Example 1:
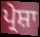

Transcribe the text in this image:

ਪ੍ਰੇਸ਼ਾ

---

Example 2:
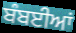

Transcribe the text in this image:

ਬੰਬਈਆਂ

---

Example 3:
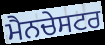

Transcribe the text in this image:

ਮੈਨਚੇਸਟਰ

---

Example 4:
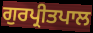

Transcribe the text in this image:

ਗੁਰਪ੍ਰੀਤਪਾਲ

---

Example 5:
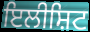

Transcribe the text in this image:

ਇਲੀਸ਼ਿਟ